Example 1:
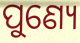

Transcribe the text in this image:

ପୁଣ୍ୟେ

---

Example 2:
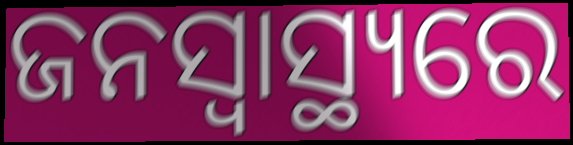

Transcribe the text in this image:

ଜନସ୍ଵାସ୍ଥ୍ୟରେ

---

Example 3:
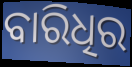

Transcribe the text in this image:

ବାରିଧିର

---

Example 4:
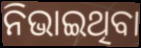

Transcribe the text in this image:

ନିଭାଇଥିବା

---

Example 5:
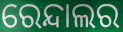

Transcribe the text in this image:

ରେନ୍ଦାଲର